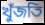
খুঁজতি